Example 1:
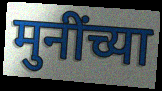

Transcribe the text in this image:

मुनींच्या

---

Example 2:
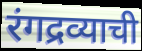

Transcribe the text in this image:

रंगद्रव्याची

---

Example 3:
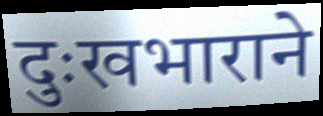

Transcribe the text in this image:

दुःखभाराने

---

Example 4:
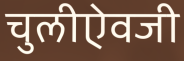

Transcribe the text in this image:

चुलीऐवजी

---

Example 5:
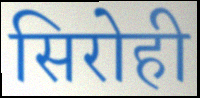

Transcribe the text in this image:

सिरोही